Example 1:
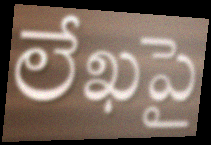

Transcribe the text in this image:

లేఖపై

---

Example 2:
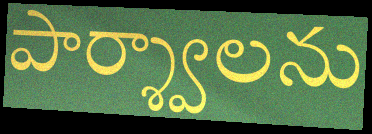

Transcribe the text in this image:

పార్శ్వాలను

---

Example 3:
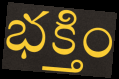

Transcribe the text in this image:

భక్తిం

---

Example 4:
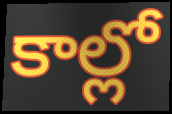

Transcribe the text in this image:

కాల్లో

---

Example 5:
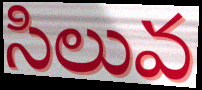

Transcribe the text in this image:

సిలువ